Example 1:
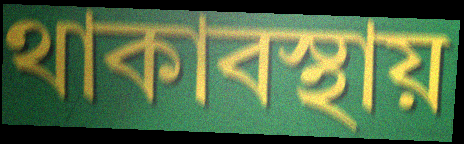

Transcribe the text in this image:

থাকাবস্থায়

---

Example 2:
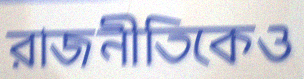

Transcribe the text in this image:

রাজনীতিকেও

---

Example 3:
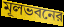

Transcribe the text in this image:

মূলভবনের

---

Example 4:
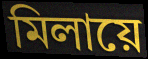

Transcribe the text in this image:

মিলায়ে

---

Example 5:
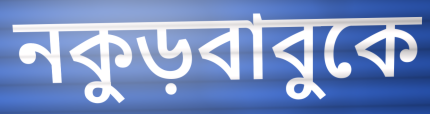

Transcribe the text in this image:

নকুড়বাবুকে